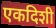
एकदिशी